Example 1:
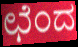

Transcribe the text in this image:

ಛೆಂದ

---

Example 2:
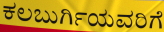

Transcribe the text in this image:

ಕಲಬುರ್ಗಿಯವರಿಗೆ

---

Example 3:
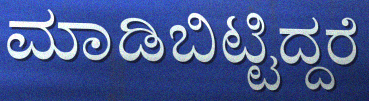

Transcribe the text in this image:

ಮಾಡಿಬಿಟ್ಟಿದ್ದರೆ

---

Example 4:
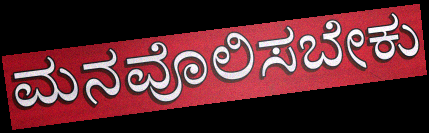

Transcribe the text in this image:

ಮನವೊಲಿಸಬೇಕು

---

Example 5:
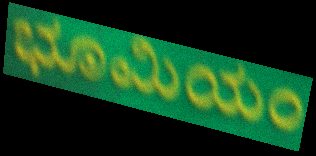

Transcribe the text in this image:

ಭೂಮಿಯಂ